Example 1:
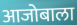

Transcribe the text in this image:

आजोबाला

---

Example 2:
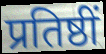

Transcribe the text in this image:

प्रतिष्ठीं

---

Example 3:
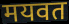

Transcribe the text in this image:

मयवत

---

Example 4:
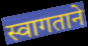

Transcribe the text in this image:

स्वागताने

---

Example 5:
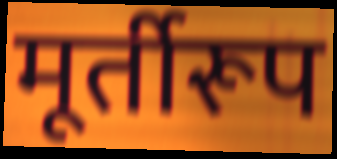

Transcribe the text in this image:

मूर्तीरूप